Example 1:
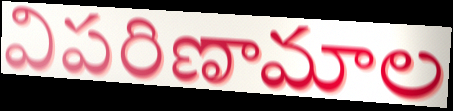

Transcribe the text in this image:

విపరిణామాల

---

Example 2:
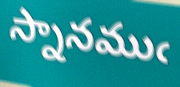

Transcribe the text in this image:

స్నానముఁ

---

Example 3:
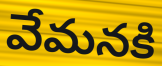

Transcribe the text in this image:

వేమనకి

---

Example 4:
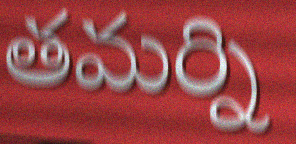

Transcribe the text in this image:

తమర్ని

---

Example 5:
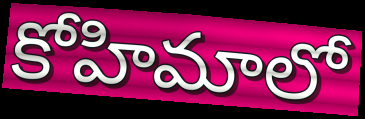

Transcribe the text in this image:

కోహిమాలో